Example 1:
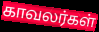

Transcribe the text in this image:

காவலர்கள்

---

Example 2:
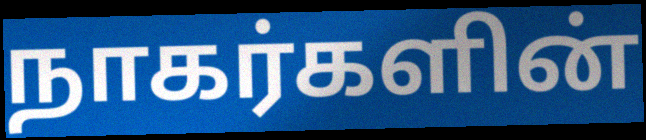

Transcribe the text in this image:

நாகர்களின்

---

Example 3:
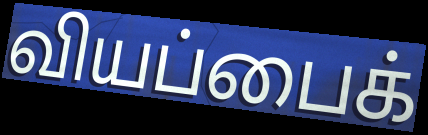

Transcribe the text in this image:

வியப்பைக்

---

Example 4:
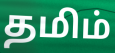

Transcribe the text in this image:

தமிம்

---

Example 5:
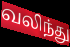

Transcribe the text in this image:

வலிந்து